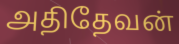
அதிதேவன்